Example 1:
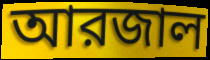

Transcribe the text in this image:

আরজাল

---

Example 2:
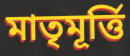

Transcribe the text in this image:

মাতৃমূর্ত্তি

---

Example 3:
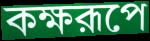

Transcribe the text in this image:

কক্ষরূপে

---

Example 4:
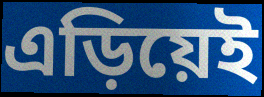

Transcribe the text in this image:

এড়িয়েই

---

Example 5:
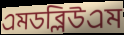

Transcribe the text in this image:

এমডব্লিউএম